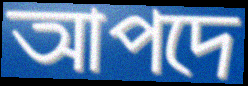
আপদে